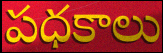
పధకాలు